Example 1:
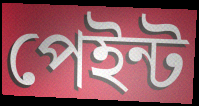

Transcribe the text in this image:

পেইন্ট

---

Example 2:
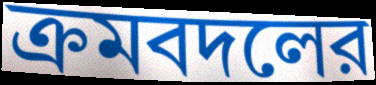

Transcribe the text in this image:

ক্রমবদলের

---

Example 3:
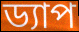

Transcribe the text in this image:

ড্যাপ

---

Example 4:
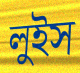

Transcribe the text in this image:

লুইস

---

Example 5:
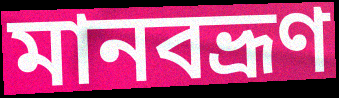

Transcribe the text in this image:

মানবভ্রূণ